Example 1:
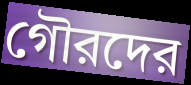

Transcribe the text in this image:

গৌরদের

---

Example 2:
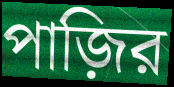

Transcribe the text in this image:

পাজ়ির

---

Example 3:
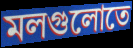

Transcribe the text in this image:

মলগুলোতে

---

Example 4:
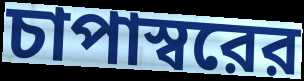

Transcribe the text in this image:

চাপাস্বরের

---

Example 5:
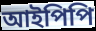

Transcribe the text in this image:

আইপিপি